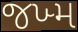
જખ્મ